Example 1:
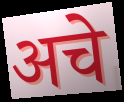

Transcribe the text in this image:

अचे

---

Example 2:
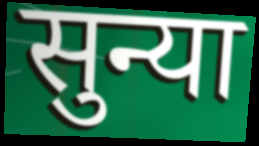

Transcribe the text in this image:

सुन्या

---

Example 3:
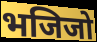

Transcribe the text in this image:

भजिजो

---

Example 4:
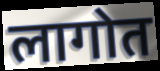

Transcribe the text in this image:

लागोत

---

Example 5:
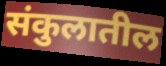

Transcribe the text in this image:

संकुलातील